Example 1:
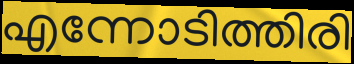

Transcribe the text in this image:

എന്നോടിത്തിരി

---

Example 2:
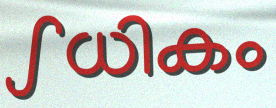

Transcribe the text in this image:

ഽധികം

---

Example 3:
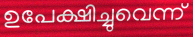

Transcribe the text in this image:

ഉപേക്ഷിച്ചുവെന്ന്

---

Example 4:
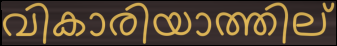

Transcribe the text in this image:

വികാരിയാത്തില്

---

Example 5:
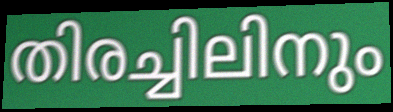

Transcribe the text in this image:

തിരച്ചിലിനും